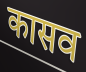
कासव